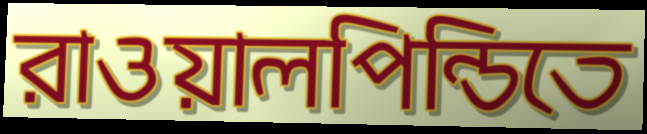
রাওয়ালপিন্ডিতে